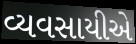
વ્યવસાયીએ